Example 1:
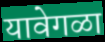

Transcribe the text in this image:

यावेगळा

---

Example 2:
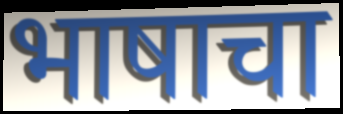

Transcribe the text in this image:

भाषाचा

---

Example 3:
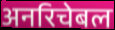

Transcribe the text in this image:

अनरिचेबल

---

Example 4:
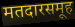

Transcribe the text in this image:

मतदारसमूह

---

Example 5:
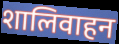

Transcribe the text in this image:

शालिवाहन